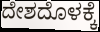
ದೇಶದೊಳಕ್ಕೆ